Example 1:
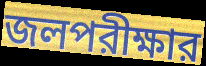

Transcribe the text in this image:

জলপরীক্ষার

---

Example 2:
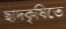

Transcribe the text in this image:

ছাদকৃষিতে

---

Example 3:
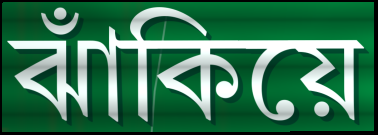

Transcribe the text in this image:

ঝাঁকিয়ে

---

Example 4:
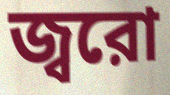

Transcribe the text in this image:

জ্বরো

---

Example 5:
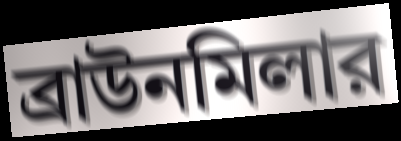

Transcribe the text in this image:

ব্রাউনমিলার